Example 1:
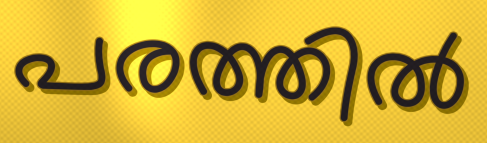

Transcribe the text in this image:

പരത്തിൽ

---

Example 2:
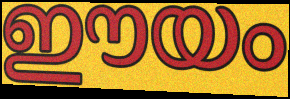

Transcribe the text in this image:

ഈയം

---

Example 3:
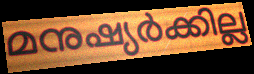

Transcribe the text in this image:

മനുഷ്യർക്കില്ല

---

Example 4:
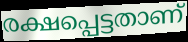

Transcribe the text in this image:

രക്ഷപ്പെട്ടതാണ്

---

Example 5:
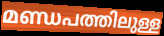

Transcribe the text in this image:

മണ്ഡപത്തിലുള്ള